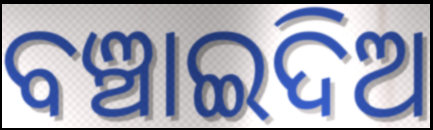
ବଞ୍ଚାଇଦିଅ